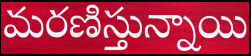
మరణిస్తున్నాయి